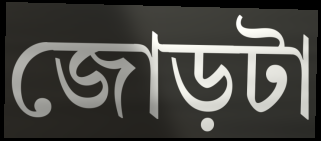
জোড়টা